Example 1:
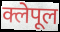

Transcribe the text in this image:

क्लेपूल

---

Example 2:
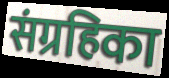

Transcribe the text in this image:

संग्रहिका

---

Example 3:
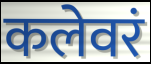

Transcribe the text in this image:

कलेवरं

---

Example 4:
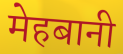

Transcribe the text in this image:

मेहबानी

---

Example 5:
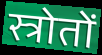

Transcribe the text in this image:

स्त्रोतों